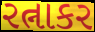
રત્નાકર